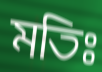
মতিঃ